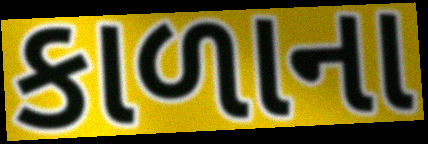
કાળાના